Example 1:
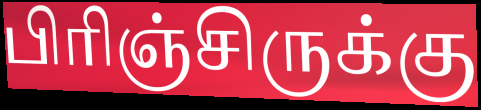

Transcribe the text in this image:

பிரிஞ்சிருக்கு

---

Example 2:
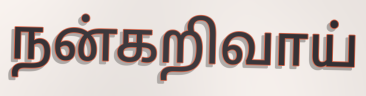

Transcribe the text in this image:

நன்கறிவாய்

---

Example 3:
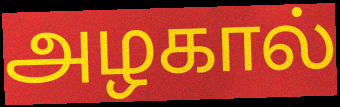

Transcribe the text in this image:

அழகால்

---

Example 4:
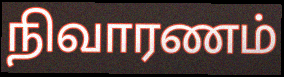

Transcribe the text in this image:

நிவாரணம்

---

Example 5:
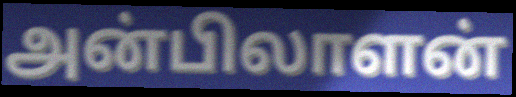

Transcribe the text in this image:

அன்பிலாளன்